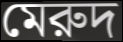
মেরুদ